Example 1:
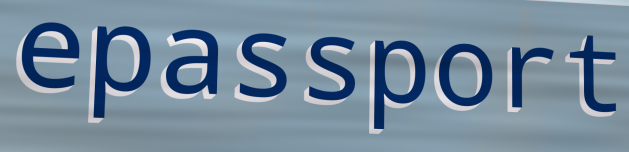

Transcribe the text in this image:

epassport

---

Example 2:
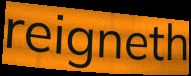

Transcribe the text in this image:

reigneth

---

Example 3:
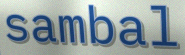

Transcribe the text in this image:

sambal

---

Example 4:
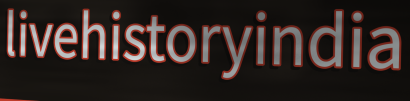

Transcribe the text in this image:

livehistoryindia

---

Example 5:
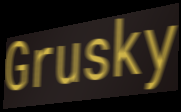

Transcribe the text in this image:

Grusky